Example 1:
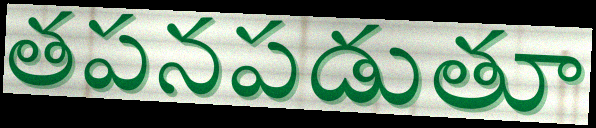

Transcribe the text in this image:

తపనపడుతూ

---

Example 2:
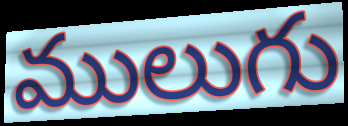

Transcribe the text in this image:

ములుగు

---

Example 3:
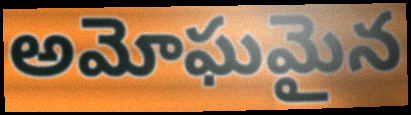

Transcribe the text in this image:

అమోఘమైన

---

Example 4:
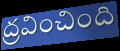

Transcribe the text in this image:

ద్రవించింది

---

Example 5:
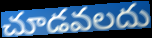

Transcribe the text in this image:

చూడవలదు